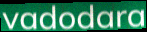
vadodara